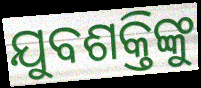
ଯୁବଶକ୍ତିଙ୍କୁ